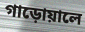
গাড়োয়ালে